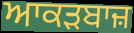
ਆਕੜਬਾਜ਼